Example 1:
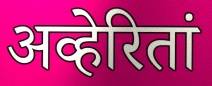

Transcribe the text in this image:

अव्हेरितां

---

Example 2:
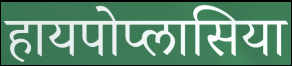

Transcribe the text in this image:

हायपोप्लासिया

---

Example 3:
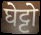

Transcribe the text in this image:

घेट्टो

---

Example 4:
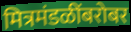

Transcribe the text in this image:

मित्रमंडळींबरोबर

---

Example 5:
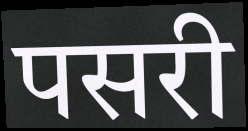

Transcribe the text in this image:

पसरी